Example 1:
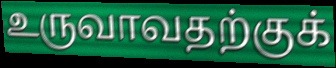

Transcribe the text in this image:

உருவாவதற்குக்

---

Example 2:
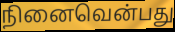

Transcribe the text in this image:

நினைவென்பது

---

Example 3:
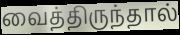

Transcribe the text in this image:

வைத்திருந்தால்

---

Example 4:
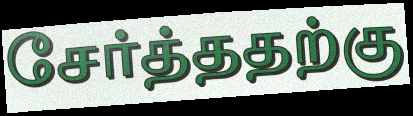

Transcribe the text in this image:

சேர்த்ததற்கு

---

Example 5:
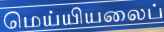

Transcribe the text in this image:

மெய்யியலைப்